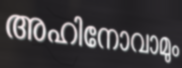
അഹിനോവാമും